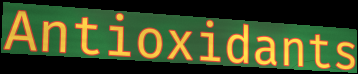
Antioxidants